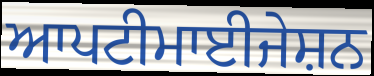
ਆਪਟੀਮਾਈਜੇਸ਼ਨ